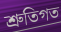
শ্রুতিগত